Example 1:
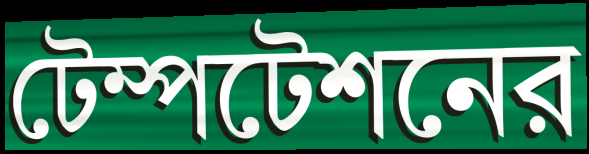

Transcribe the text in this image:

টেম্পটেশনের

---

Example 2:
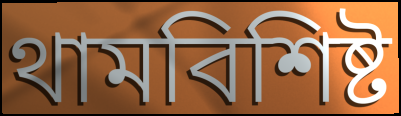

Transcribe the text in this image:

থামবিশিষ্ট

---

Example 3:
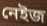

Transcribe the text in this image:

নেইজ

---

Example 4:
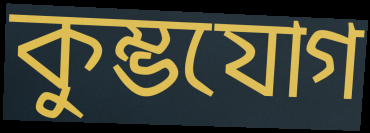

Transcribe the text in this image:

কুম্ভযোগ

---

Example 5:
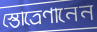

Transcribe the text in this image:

স্তোত্রেণানেন